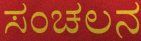
ಸಂಚಲನ